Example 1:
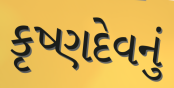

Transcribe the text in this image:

કૃષ્ણદેવનું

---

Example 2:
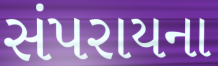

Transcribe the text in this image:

સંપરાયના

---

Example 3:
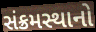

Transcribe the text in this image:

સંક્રમસ્થાનો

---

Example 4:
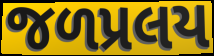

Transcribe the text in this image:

જળપ્રલય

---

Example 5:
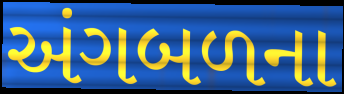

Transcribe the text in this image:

અંગબળના